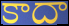
కాదా